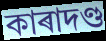
কাৰাদণ্ড